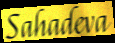
Sahadeva